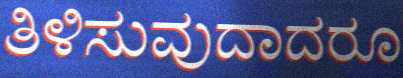
ತಿಳಿಸುವುದಾದರೂ